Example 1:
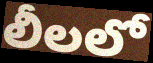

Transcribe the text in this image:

లీలలో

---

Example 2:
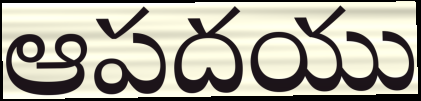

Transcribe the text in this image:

ఆపదయు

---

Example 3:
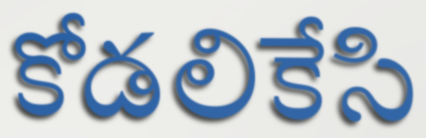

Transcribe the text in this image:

కోడలికేసి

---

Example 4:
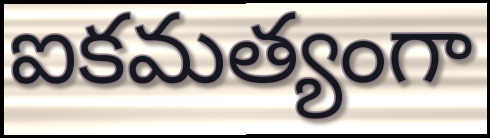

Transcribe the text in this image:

ఐకమత్యంగా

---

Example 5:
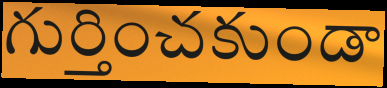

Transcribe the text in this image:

గుర్తించకుండా